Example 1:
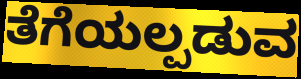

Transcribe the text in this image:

ತೆಗೆಯಲ್ಪಡುವ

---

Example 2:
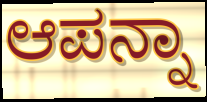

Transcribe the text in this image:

ಆಪನ್ನಾ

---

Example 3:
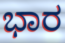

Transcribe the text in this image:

ಭಾರ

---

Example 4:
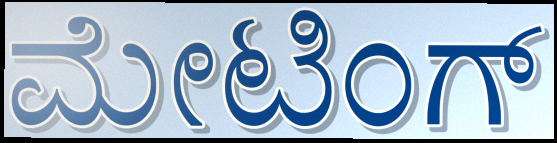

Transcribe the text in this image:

ಮೇಟಿಂಗ್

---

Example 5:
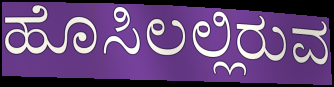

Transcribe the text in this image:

ಹೊಸಿಲಲ್ಲಿರುವ